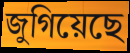
জুগিয়েছে